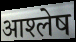
आश्लेष